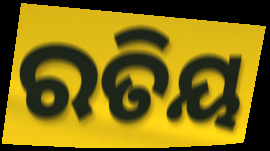
ରତିୟ